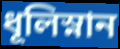
ধূলিস্নান